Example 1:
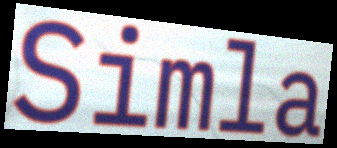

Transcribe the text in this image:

Simla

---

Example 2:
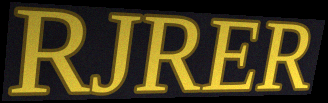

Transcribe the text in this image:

RJRER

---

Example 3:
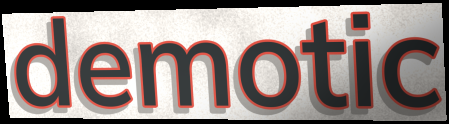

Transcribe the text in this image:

demotic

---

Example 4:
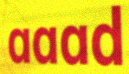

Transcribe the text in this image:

aaad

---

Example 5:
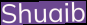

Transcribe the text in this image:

Shuaib